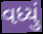
વધ્યું